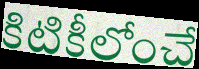
కిటికీలోంచే